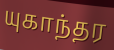
யுகாந்தர